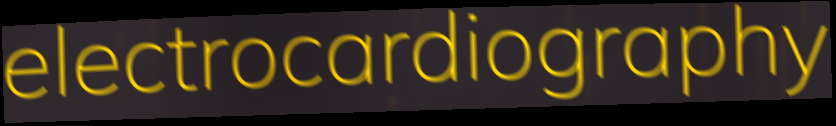
electrocardiography